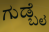
ಗುಡ್ಬೈ